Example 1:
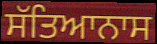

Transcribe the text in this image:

ਸੱਤਿਆਨਾਸ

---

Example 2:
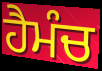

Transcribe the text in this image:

ਹੈਮੰਚ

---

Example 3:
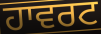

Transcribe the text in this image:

ਹਾਵਰਟ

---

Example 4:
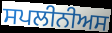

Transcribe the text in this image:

ਸਪਲੀਨੀਅਸ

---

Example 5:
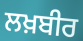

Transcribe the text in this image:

ਲਖ਼ਬੀਰ